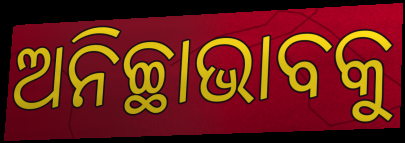
ଅନିଚ୍ଛାଭାବକୁ